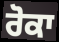
ਰੋਕਾ